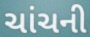
ચાંચની